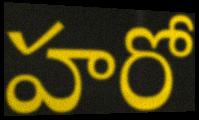
హరో